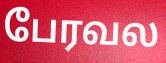
பேரவல